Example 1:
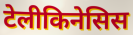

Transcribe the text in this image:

टेलीकिनेसिस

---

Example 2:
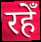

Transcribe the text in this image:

रहेँ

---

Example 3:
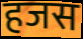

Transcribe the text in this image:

हजस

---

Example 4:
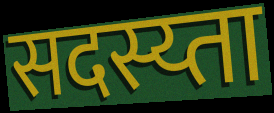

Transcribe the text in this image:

सदस्य्ता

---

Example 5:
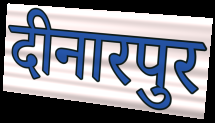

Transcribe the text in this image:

दीनारपुर